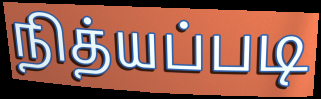
நித்யப்படி